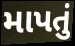
માપતું